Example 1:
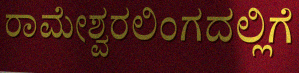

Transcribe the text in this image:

ರಾಮೇಶ್ವರಲಿಂಗದಲ್ಲಿಗೆ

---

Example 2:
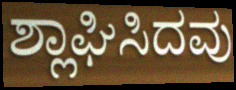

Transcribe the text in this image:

ಶ್ಲಾಘಿಸಿದವು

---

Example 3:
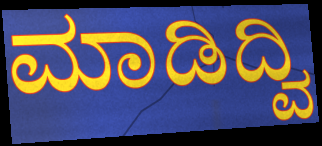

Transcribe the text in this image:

ಮಾಡಿದ್ವಿ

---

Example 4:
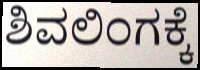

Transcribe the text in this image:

ಶಿವಲಿಂಗಕ್ಕೆ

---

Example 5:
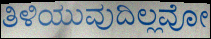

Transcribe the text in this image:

ತಿಳಿಯುವುದಿಲ್ಲವೋ